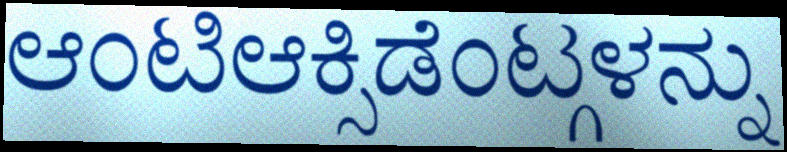
ಆಂಟಿಆಕ್ಸಿಡೆಂಟ್ಗಳನ್ನು